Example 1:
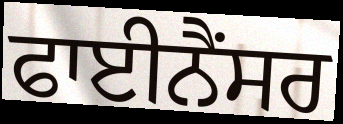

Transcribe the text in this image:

ਫਾਈਨੈਂਸਰ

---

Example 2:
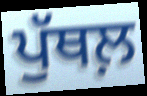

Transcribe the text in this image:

ਪੁੱਥਲ਼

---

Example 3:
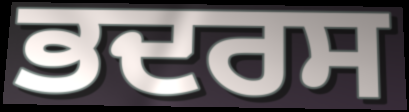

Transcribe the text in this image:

ਭਦਰਸ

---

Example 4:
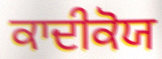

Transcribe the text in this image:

ਕਾਦੀਕੋਯ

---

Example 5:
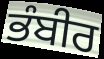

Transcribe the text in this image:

ਭੰਬੀਰ